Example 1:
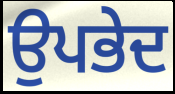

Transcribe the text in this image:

ਉਪਭੇਦ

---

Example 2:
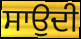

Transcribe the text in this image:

ਸਾਉਦੀ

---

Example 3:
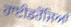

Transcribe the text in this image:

ਹਾਈਡਰੇਂਜਿਆਂ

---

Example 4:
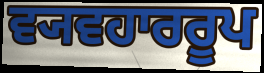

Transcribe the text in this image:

ਵ੍ਯਵਹਾਰਰੂਪ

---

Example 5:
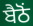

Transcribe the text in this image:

ਬੈਠੋਂ